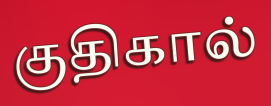
குதிகால்